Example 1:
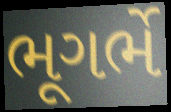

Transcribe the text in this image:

ભૂગર્ભે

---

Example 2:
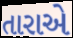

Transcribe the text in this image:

તારાએ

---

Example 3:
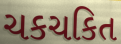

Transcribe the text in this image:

ચકચકિત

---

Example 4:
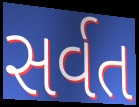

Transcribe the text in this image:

સર્વત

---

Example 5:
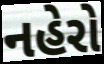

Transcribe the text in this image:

નહેરો